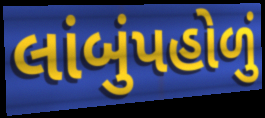
લાંબુંપહોળું